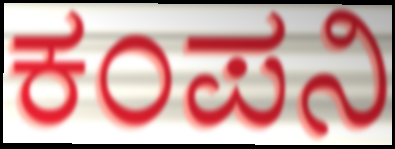
ಕಂಪನಿ